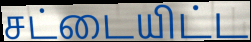
சட்டையிட்ட